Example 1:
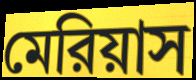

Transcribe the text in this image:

মেরিয়াস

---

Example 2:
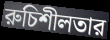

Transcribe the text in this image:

রুচিশীলতার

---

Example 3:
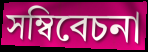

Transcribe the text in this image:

সম্বিবেচনা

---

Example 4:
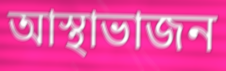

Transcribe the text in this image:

আস্থাভাজন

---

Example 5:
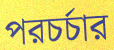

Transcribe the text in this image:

পরচর্চার